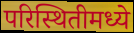
परिस्थितीमध्ये